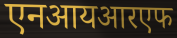
एनआयआरएफ